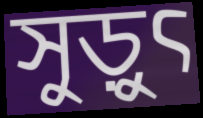
সুড়ুৎ